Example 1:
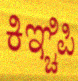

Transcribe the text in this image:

ಕಿಞ್ಚಿಪಿ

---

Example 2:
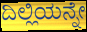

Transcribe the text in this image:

ದಿಲ್ಲಿಯನ್ನೇ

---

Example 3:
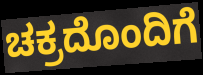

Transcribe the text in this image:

ಚಕ್ರದೊಂದಿಗೆ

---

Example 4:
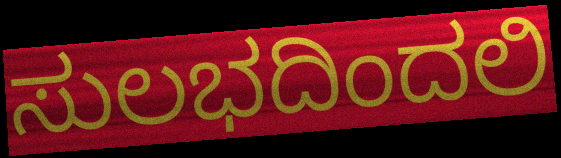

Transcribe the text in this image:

ಸುಲಭದಿಂದಲಿ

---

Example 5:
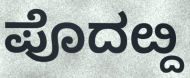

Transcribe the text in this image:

ಪೊದೞ್ದ